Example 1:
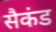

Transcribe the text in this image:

सैकंड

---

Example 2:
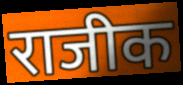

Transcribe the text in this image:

राजीक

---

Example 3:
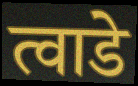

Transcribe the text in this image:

त्वाडे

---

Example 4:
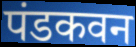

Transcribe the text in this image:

पंडकवन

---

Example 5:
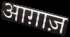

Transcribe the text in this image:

आग़ाज़